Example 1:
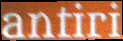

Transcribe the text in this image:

antiri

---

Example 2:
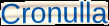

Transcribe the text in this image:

Cronulla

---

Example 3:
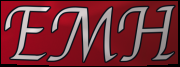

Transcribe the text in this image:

EMH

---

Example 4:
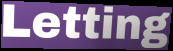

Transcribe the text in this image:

Letting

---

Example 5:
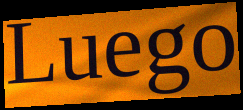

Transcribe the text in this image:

Luego